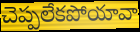
చెప్పలేకపోయావా